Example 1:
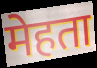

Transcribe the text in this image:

मेहता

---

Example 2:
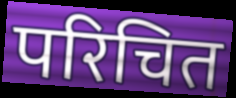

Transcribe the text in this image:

परिचित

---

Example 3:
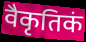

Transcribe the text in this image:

वैकृतिकं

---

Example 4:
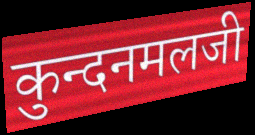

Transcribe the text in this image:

कुन्दनमलजी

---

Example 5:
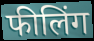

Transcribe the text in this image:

फीलिंग